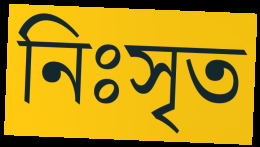
নিঃসৃত